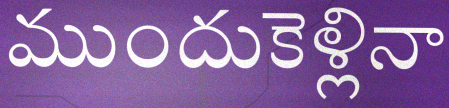
ముందుకెళ్లినా